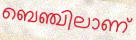
ബെഞ്ചിലാണ്